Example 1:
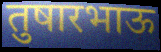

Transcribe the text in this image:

तुषारभाऊ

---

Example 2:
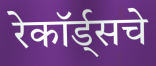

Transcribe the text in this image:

रेकॉर्ड्सचे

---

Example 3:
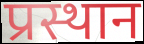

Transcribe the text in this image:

प्रस्थान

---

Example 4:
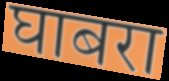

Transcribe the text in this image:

घाबरा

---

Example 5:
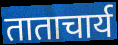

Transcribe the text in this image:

ताताचार्य